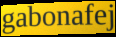
gabonafej